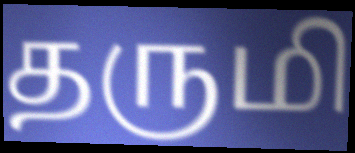
தருமி